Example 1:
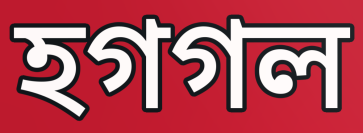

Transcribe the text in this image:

হগগল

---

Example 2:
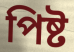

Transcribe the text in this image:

পিষ্ট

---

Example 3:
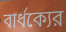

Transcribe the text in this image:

বার্ধক্যের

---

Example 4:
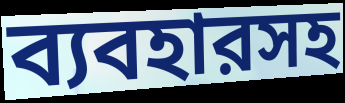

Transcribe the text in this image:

ব্যবহারসহ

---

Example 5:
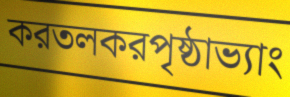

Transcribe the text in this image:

করতলকরপৃষ্ঠাভ্যাং